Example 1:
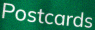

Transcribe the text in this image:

Postcards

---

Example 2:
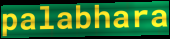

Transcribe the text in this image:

palabhara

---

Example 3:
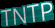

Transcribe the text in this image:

TNTP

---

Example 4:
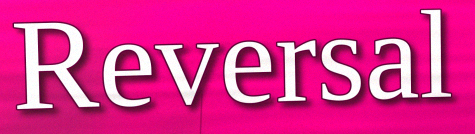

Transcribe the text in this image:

Reversal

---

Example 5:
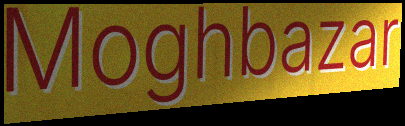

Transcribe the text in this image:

Moghbazar